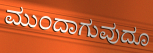
ಮುಂದಾಗುವುದೂ